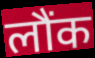
लौंक